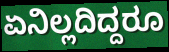
ಏನಿಲ್ಲದಿದ್ದರೂ